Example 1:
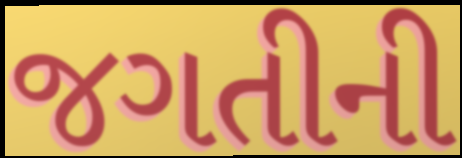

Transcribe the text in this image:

જગતીની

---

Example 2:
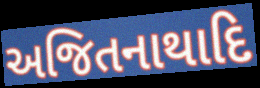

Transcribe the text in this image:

અજિતનાથાદિ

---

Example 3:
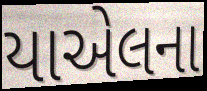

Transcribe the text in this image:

યાએલના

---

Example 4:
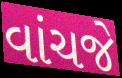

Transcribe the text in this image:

વાંચજે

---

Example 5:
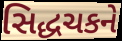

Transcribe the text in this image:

સિદ્ધચકને